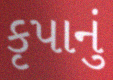
કૃપાનું